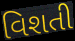
વિશતી